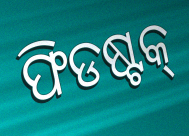
ଫିଡଷ୍ଟକ୍